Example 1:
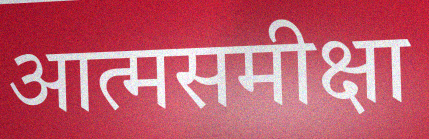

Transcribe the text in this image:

आत्मसमीक्षा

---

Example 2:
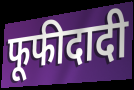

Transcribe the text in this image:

फूफीदादी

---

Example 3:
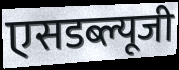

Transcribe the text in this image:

एसडब्ल्यूजी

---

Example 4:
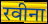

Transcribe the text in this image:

रवीना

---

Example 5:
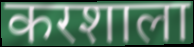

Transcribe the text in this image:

करशाला